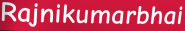
Rajnikumarbhai